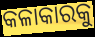
କଳାକାରକୁ